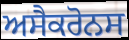
ਅਸੈਕਰੋਨਸ